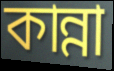
কান্না